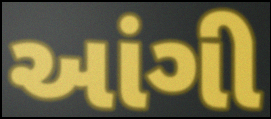
આંગી